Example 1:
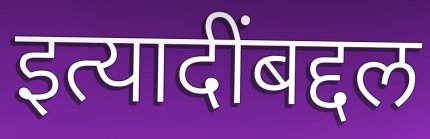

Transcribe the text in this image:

इत्यादींबद्दल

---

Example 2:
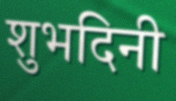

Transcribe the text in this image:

शुभदिनी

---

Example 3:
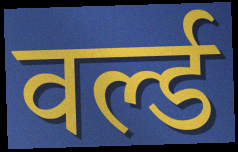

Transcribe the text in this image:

वर्ल्ड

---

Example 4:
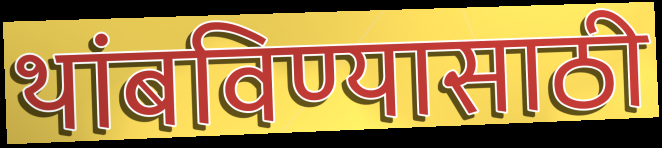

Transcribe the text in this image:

थांबविण्यासाठी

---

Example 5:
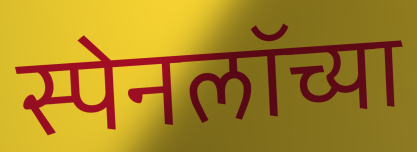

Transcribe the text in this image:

स्पेनलॉच्या